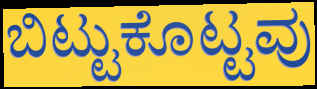
ಬಿಟ್ಟುಕೊಟ್ಟವು